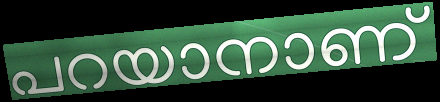
പറയാനാണ്